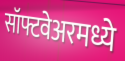
सॉफ्टवेअरमध्ये